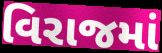
વિરાજમાં